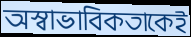
অস্বাভাবিকতাকেই